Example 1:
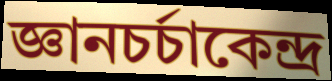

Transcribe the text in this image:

জ্ঞানচর্চাকেন্দ্র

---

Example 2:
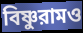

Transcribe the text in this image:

বিষ্ণুরামও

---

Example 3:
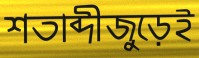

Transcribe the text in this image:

শতাব্দীজুড়েই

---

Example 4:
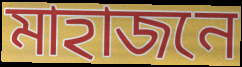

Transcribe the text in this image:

মাহাজনে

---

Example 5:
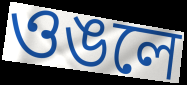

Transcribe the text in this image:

ওঙলে